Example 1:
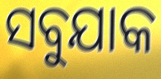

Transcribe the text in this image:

ସବୁଯାକ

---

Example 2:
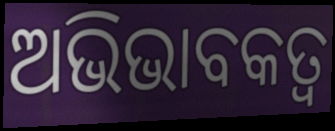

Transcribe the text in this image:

ଅଭିଭାବକତ୍ବ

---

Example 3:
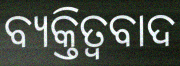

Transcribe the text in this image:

ବ୍ଯକ୍ତିତ୍ଵବାଦ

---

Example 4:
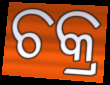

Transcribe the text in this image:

ଚକ୍ର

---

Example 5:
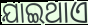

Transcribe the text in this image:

ଯାଇଥାଏ